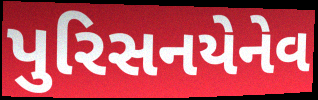
પુરિસનયેનેવ